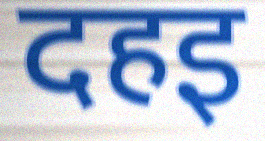
दहइ